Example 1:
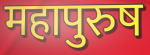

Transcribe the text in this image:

महापुरुष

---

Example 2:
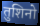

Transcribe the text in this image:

तुशिनो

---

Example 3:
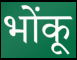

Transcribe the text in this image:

भोंकू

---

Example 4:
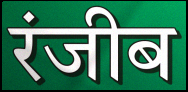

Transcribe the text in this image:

रंजीब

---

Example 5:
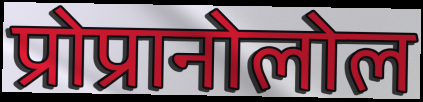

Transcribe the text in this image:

प्रोप्रानोलोल